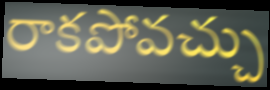
రాకపోవచ్చు